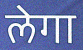
लेगा